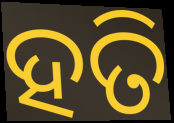
ହତି